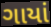
ગાયાં